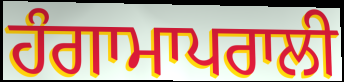
ਹੰਗਾਮਾਪਰਾਲੀ